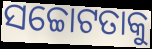
ସଚ୍ଚୋଟତାକୁ